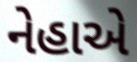
નેહાએ